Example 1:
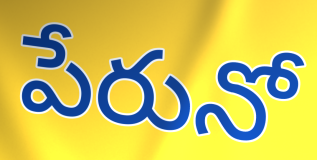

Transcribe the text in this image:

పేరునో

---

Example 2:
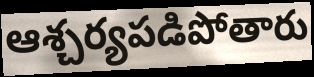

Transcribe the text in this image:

ఆశ్చర్యపడిపోతారు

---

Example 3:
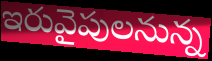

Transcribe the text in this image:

ఇరువైపులనున్న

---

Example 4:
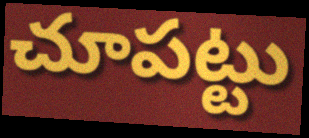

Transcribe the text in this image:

చూపట్టు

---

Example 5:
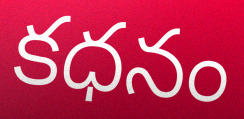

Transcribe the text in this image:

కధనం